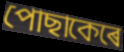
পোছাকেৰে